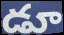
డూ